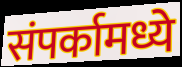
संपर्कामध्ये